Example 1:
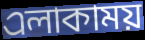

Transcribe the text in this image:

এলাকাময়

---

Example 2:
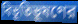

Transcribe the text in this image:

বিভূতিভূষণের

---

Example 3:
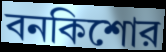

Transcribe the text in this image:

বনকিশোর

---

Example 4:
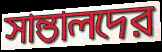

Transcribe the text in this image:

সান্তালদের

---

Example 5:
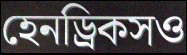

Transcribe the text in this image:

হেনড্রিকসও